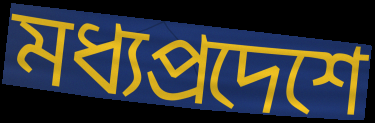
মধ্যপ্রদেশে